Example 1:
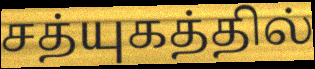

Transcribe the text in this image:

சத்யுகத்தில்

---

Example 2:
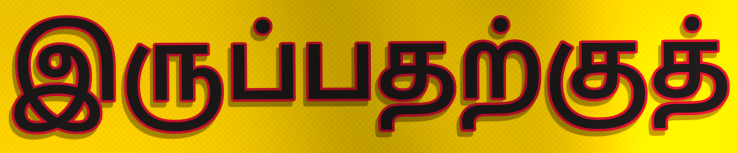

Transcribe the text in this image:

இருப்பதற்குத்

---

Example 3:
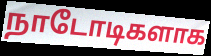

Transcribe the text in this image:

நாடோடிகளாக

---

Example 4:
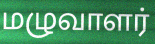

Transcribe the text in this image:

மழுவாளர்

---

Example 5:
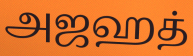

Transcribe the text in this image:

அஜஹத்